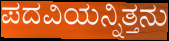
ಪದವಿಯನ್ನಿತ್ತನು